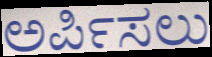
ಅರ್ಪಿಸಲು